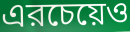
এরচেয়েও